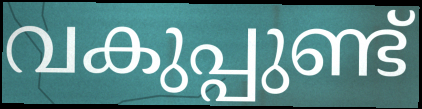
വകുപ്പുണ്ട്